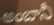
అంబానీ